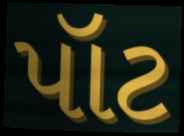
પૉટ